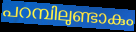
പറമ്പിലുണ്ടാകും